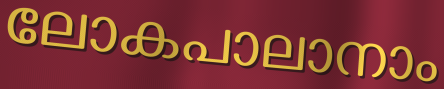
ലോകപാലാനാം